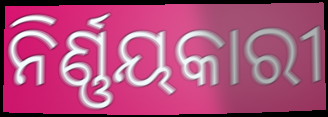
ନିର୍ଣ୍ଣୟକାରୀ